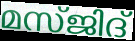
മസ്ജിദ്